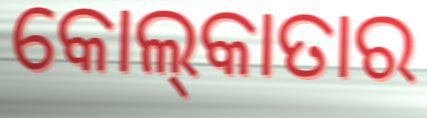
କୋଲ୍‍କାତାର